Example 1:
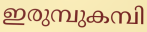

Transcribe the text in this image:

ഇരുമ്പുകമ്പി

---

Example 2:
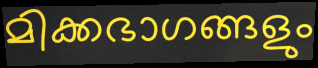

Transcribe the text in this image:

മിക്കഭാഗങ്ങളും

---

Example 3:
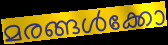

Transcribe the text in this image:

മരങ്ങൾക്കോ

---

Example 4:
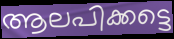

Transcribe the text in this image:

ആലപിക്കട്ടെ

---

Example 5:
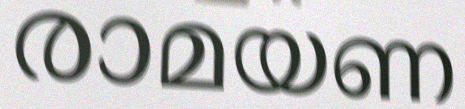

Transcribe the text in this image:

രാമയണ